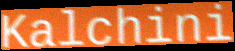
Kalchini